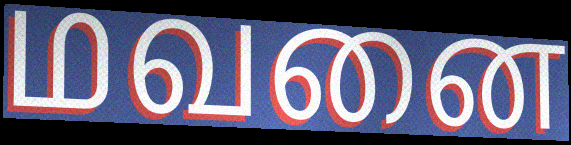
மவனை